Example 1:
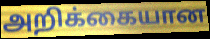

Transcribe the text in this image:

அறிக்கையான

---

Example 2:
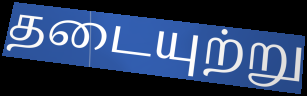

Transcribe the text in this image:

தடையுற்று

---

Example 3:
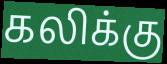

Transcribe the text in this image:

கலிக்கு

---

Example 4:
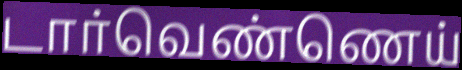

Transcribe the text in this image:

டார்வெண்ணெய்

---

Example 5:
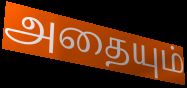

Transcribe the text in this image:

அதையும்